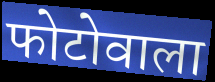
फोटोवाला